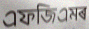
এফজিএমৰ